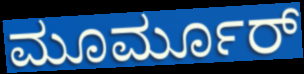
ಮೂರ್ಮೂರ್